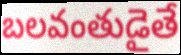
బలవంతుడైతే